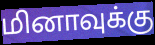
மினாவுக்கு